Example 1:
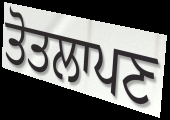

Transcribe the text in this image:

ਤੋਤਲਾਪਣ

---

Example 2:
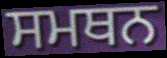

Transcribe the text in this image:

ਸਮਥਨ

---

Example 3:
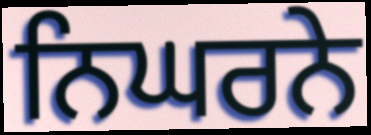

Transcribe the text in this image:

ਨਿਘਰਨੇ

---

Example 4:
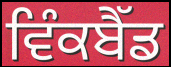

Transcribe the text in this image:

ਵਿੰਕਬੈੱਡ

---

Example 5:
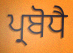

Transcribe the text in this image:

ਪ੍ਰਬੋਧੈ